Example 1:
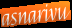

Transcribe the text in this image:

asnarivu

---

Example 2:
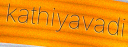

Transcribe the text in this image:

kathiyavadi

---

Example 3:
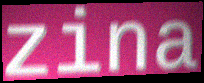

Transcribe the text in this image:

zina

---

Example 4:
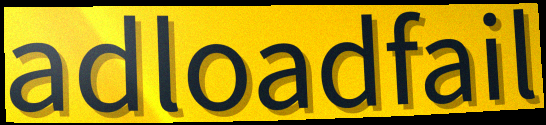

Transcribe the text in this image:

adloadfail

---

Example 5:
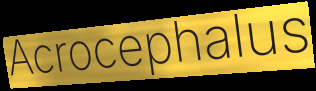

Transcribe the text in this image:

Acrocephalus